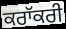
ਕਰਾੱਕਰੀ